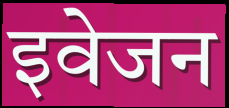
इवेजन